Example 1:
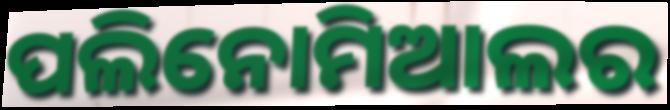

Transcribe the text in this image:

ପଲିନୋମିଆଲର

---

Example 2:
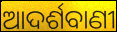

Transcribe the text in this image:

ଆଦର୍ଶବାଣୀ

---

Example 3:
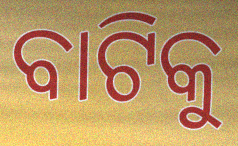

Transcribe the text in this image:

ବାଟିକୁ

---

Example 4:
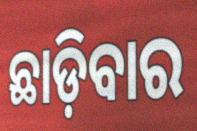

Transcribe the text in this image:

ଛାଡ଼ିବାର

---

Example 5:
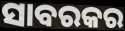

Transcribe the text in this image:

ସାବରକର